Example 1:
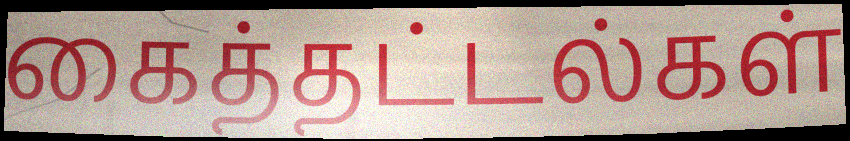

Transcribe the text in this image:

கைத்தட்டல்கள்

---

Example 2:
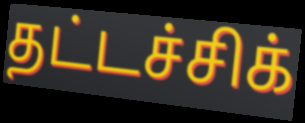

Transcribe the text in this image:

தட்டச்சிக்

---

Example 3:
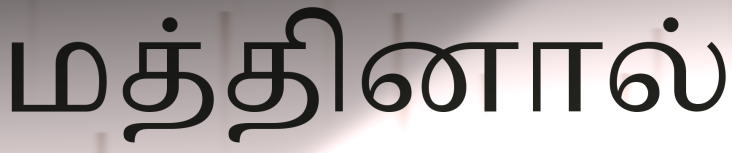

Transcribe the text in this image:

மத்தினால்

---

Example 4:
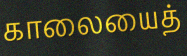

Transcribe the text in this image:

காலையைத்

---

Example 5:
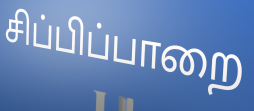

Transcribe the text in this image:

சிப்பிப்பாறை